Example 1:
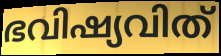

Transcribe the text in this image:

ഭവിഷ്യവിത്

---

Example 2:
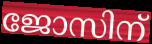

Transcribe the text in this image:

ജോസിന്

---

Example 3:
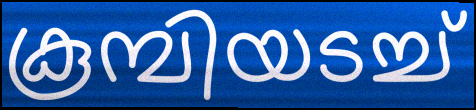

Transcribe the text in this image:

കൂമ്പിയടച്ച്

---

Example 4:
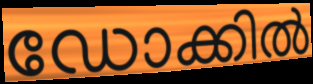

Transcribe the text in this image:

ഡോക്കിൽ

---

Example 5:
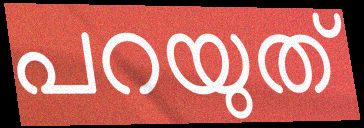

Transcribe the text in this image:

പറയുത്